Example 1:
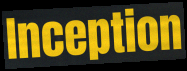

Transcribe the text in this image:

Inception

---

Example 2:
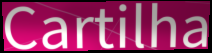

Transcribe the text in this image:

Cartilha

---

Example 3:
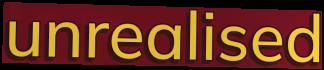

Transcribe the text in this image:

unrealised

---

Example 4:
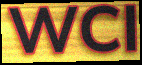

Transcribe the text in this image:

WCI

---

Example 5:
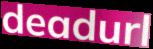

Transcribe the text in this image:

deadurl